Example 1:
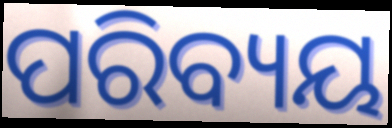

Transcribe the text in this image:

ପରିବ୍ୟୟ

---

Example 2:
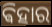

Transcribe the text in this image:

ଵିହାର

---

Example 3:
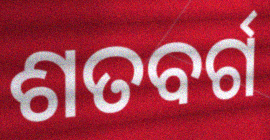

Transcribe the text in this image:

ଶତବର୍ଗ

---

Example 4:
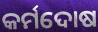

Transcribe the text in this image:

କର୍ମଦୋଷ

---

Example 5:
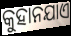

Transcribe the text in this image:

କୁହାନଯାଏ